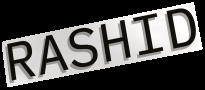
RASHID